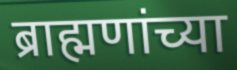
ब्राह्मणांच्या